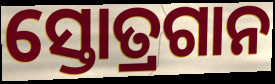
ସ୍ତୋତ୍ରଗାନ